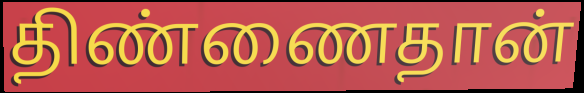
திண்ணைதான்